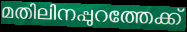
മതിലിനപ്പുറത്തേക്ക്